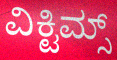
ವಿಕ್ಟಿಮ್ಸ್